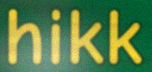
hikk